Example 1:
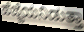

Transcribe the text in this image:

ಹೆಜ್ಜೆಯನಿಡುತ್ತಾ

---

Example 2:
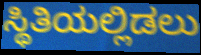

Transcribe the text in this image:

ಸ್ಥಿತಿಯಲ್ಲಿಡಲು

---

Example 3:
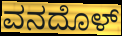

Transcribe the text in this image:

ವನದೊಳ್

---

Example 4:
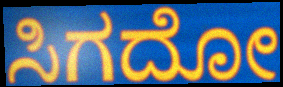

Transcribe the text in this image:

ಸಿಗದೋ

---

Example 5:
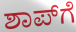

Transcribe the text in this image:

ಶಾಪ್‌ಗೆ